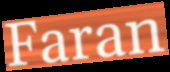
Faran